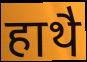
हाथै